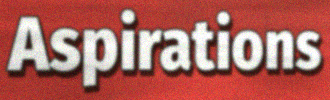
Aspirations